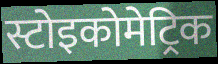
स्टोइकोमेट्रिक